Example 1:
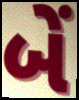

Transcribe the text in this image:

બેં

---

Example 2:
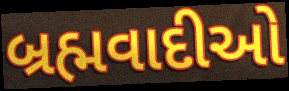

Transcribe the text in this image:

બ્રહ્મવાદીઓ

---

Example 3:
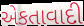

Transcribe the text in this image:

એકતાવાદી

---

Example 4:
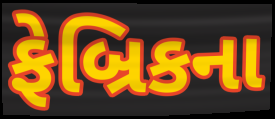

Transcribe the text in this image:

ફેબ્રિકના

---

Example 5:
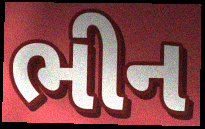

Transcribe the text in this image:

ભીન